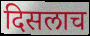
दिसलाच